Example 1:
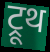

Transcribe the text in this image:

ट्रूथ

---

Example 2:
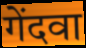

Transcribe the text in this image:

गेंदवा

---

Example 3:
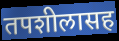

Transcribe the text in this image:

तपशीलासह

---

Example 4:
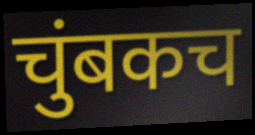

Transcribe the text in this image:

चुंबकच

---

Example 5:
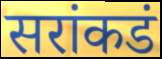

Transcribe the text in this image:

सरांकडं